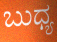
ಬುಧ್ಯ